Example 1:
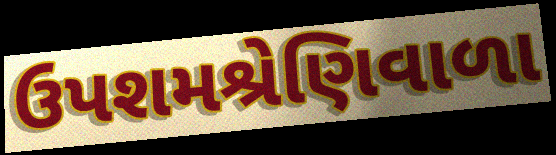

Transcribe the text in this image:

ઉપશમશ્રેણિવાળા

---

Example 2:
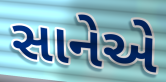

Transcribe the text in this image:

સાનેએ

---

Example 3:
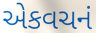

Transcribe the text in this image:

એકવચનં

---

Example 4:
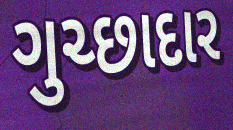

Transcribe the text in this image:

ગુચ્છાદાર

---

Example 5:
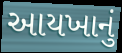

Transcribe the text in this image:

આયખાનું